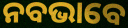
ନବଭାବେ